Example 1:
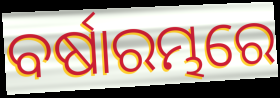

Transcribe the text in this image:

ବର୍ଷାରମ୍ଭରେ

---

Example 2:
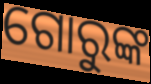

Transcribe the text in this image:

ଗୋରୁଙ୍କ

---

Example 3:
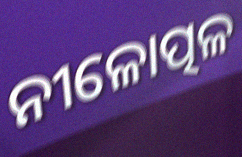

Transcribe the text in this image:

ନୀଳୋତ୍ପଳ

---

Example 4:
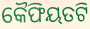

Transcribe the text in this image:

କୈଫିୟତଟି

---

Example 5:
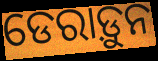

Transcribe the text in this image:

ଡେରାଡ଼ୁନ